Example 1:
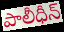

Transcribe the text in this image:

పాలీధీన్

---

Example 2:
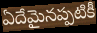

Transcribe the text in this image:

ఏదేమైనప్పటికీ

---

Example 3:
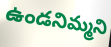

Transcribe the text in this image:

ఉండనిమ్మని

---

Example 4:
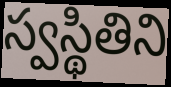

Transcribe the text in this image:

స్వస్థితిని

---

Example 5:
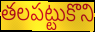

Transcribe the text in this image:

తలపట్టుకొని